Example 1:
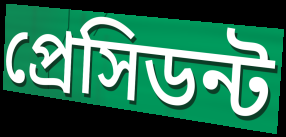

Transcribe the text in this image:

প্রেসিডন্ট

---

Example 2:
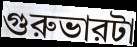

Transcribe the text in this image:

গুরুভারটা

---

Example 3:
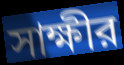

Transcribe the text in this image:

সাক্ষীর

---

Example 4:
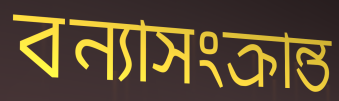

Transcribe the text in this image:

বন্যাসংক্রান্ত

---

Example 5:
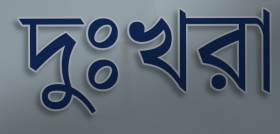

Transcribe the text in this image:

দুঃখরা